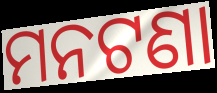
ମନଟଣା